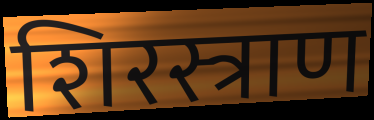
शिरस्त्राण